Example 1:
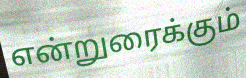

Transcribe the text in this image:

என்றுரைக்கும்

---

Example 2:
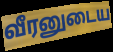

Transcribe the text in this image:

வீரனுடைய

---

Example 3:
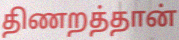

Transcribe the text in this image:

திணறத்தான்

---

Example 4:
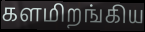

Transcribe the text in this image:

களமிறங்கிய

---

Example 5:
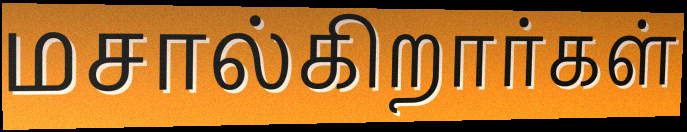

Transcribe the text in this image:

மசால்கிறார்கள்